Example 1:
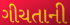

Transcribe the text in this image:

ગીચતાની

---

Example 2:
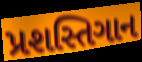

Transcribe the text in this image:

પ્રશસ્તિગાન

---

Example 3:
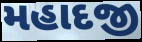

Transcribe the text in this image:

મહાદજી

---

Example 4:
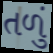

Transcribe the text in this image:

તળું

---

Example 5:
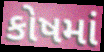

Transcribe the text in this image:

કોષમાં